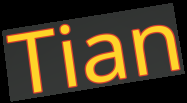
Tian